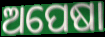
ଅପେଷା